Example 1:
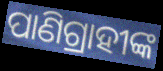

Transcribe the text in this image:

ପାଣିଗ୍ରାହୀଙ୍କ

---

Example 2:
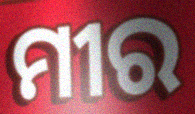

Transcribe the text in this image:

ମୀର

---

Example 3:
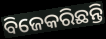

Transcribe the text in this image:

ବିଜେକରିଛନ୍ତି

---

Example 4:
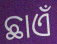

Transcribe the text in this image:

ଛାଏଁ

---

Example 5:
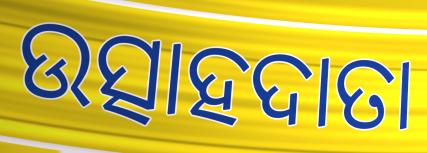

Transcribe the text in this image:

ଉତ୍ସାହଦାତା